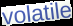
volatile